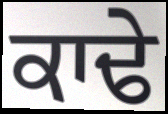
ਕਾਢੇ